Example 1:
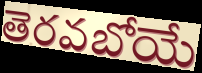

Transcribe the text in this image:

తెరవబోయే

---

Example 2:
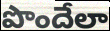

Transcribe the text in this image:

పొందేలా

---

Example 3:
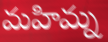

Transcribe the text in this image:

మహిమ్న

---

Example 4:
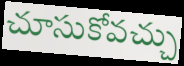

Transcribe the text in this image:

చూసుకోవచ్చు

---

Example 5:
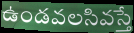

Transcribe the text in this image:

ఉండవలసివస్తే